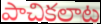
పాచికలాట